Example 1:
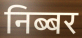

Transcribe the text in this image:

निब्बर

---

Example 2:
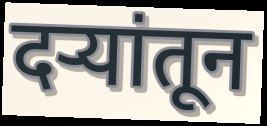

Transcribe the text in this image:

दऱ्यांतून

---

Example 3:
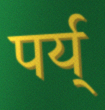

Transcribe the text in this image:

पर्य्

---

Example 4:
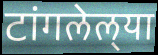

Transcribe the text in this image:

टांगलेल्या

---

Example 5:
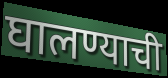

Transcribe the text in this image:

घालण्याची